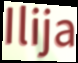
Ilija